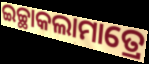
ଇଚ୍ଛାକଲାମାତ୍ରେ